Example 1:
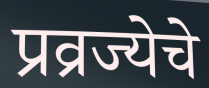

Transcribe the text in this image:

प्रव्रज्येचे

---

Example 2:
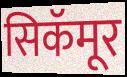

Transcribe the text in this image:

सिकॅमूर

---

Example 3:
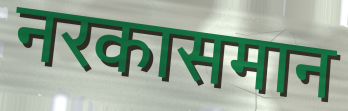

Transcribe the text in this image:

नरकासमान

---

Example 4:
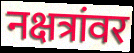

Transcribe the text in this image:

नक्षत्रांवर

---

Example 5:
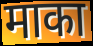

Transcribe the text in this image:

माका